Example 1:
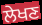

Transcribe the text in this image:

ਲੇਖਣ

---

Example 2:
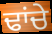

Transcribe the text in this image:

ਢਾਂਚੇ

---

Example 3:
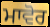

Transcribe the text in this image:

ਮਾਵੋਰ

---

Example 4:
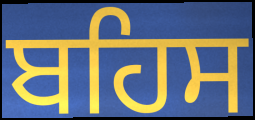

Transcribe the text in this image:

ਬਹਿਸ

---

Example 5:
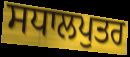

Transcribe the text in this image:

ਸਧਾਲਪੁਤਰ